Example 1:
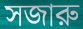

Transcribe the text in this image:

সজারু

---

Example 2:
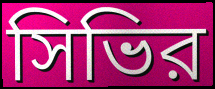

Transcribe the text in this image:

সিভির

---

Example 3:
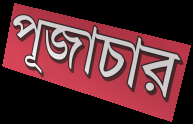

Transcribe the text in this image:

পূজাচার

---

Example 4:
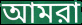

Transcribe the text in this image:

আমরা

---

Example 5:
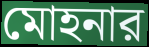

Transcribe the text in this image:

মোহনার